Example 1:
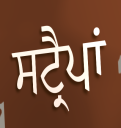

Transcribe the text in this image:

ਸਟ੍ਰੈਪਾਂ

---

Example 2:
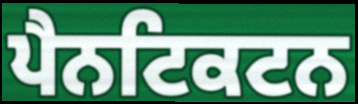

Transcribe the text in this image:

ਪੈਨਟਿਕਟਨ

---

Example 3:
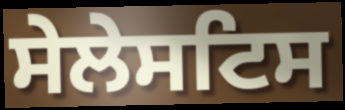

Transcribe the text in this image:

ਸੇਲੇਸਟਿਸ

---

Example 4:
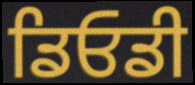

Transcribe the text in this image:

ਡਿਓਡੀ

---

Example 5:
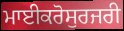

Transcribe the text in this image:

ਮਾਈਕਰੋਸੁਰਜਰੀ